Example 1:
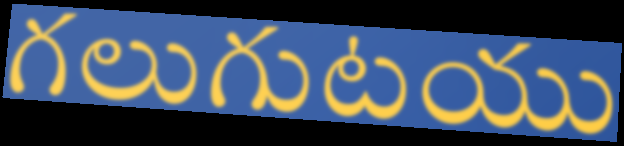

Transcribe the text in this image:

గలుగుటయు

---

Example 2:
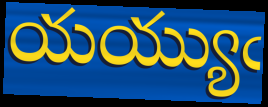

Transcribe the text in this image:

యయ్యుఁ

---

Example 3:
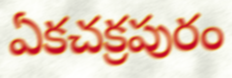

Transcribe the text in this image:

ఏకచక్రపురం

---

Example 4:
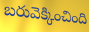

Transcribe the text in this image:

బరువెక్కించింది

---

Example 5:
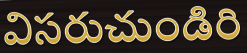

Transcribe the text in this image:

విసరుచుండిరి